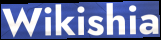
Wikishia